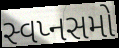
સ્વપ્નસમો